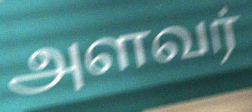
அளவர்